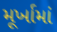
મૂર્ખામાં